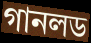
গানলড